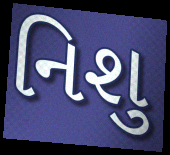
નિશુ